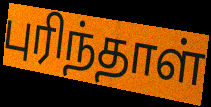
புரிந்தாள்